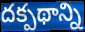
దక్పథాన్ని